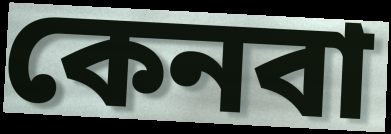
কেনবা